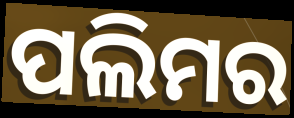
ପଲିମର